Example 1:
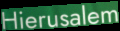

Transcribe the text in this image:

Hierusalem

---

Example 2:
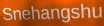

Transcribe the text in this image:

Snehangshu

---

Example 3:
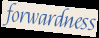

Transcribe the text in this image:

forwardness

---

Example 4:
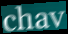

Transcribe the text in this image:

chav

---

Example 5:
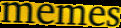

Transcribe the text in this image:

memes